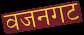
वजनगट